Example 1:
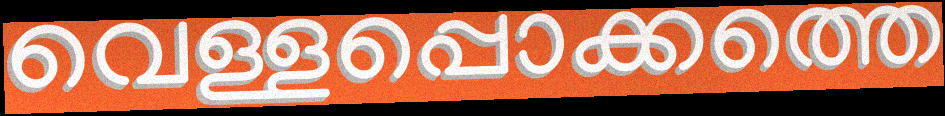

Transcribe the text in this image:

വെള്ളപ്പൊക്കത്തെ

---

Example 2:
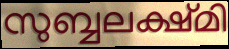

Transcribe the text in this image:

സുബ്ബലക്ഷ്മി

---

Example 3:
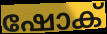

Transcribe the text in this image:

ഷോക്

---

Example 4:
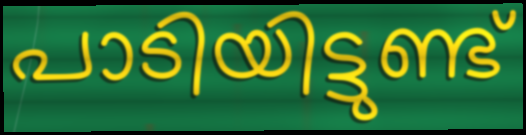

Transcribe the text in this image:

പാടിയിട്ടുണ്ട്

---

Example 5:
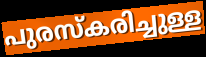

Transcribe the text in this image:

പുരസ്കരിച്ചുള്ള